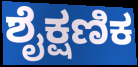
ಶೈಕ್ಷಣಿಕ